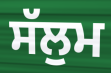
ਸੱਲੁਮ